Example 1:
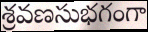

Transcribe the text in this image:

శ్రవణసుభగంగా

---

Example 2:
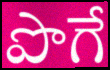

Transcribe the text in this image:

పొగే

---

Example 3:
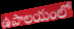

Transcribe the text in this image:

ఉపాలయంలో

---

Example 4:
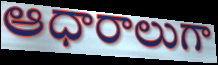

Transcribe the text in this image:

ఆధారాలుగా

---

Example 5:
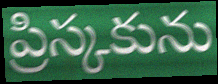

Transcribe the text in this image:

ప్రిస్కకును